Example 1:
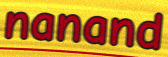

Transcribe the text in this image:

nanand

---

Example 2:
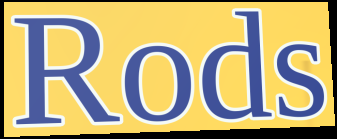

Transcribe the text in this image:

Rods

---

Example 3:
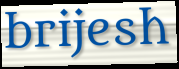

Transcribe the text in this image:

brijesh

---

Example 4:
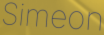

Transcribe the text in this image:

Simeon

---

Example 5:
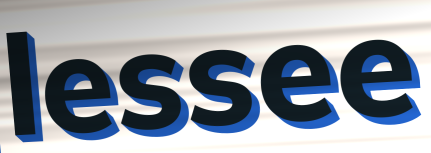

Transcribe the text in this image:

lessee